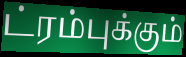
ட்ரம்புக்கும்